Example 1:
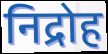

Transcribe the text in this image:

निद्रोह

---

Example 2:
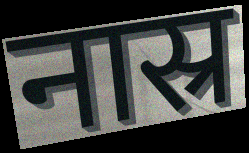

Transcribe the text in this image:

नास्र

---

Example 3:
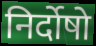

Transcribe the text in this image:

निर्दोषो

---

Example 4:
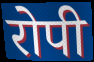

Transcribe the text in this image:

रोपी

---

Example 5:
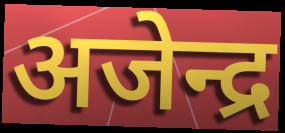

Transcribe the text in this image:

अजेन्द्र